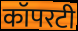
कॉपरटी